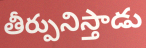
తీర్పునిస్తాడు